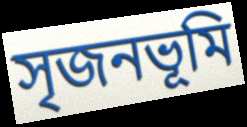
সৃজনভূমি